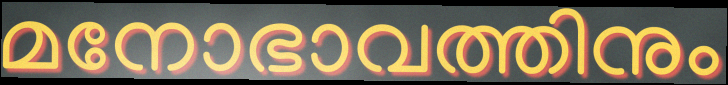
മനോഭാവത്തിനും